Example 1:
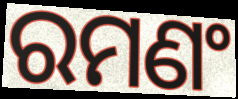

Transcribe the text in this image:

ରମଣଂ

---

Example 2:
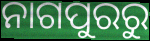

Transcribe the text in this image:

ନାଗପୁରରୁ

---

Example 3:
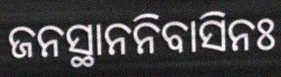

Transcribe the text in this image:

ଜନସ୍ଥାନନିବାସିନଃ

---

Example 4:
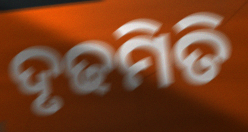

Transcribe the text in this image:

ଦୃଢମିତି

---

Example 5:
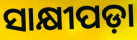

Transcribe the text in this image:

ସାକ୍ଷୀପଡ଼ା